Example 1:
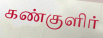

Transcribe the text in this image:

கண்குளிர்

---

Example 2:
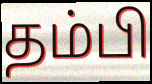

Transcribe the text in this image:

தம்பி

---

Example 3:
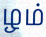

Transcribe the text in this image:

ழம்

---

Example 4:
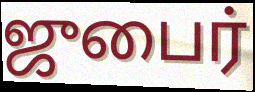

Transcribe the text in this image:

ஜுபைர்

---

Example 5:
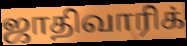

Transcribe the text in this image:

ஜாதிவாரிக்